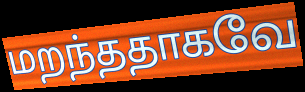
மறந்ததாகவே